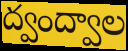
ద్వంద్వాల